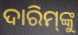
ଦାରିମ୍‍ଙ୍କୁ